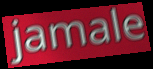
jamale